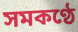
সমকণ্ঠে